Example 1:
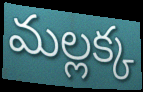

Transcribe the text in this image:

మల్లక్క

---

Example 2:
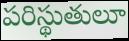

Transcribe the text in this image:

పరిస్థుతులూ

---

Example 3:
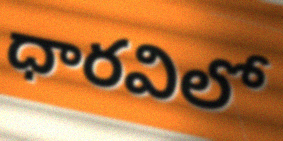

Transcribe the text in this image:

ధారవిలో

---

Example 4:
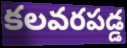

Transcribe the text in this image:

కలవరపడ్డ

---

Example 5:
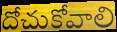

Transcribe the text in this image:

దోచుకోవాలి